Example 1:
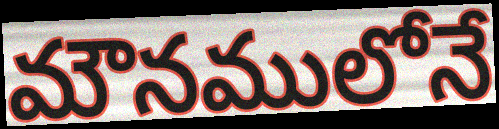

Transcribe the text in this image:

మౌనములోనే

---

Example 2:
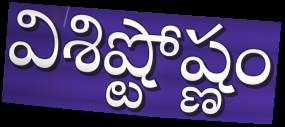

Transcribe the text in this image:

విశిష్టోష్ణం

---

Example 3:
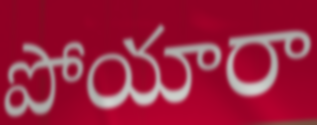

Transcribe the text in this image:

పోయారా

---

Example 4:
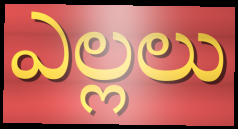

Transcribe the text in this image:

ఎల్లలు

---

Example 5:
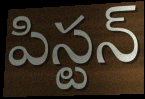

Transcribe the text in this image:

పిస్టన్